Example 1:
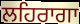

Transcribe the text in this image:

ਲਹਿਰਾਗਾ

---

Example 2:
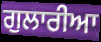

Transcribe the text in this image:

ਗੁਲਾਰੀਆ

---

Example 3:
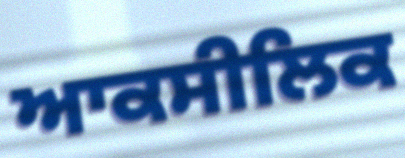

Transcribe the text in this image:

ਆਕਸੀਲਿਕ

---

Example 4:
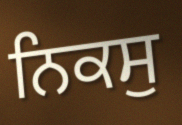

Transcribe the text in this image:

ਨਿਕਸੁ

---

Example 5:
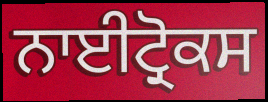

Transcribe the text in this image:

ਨਾਈਟ੍ਰੋਕਸ